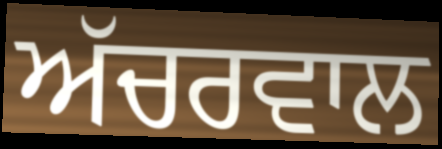
ਅੱਚਰਵਾਲ